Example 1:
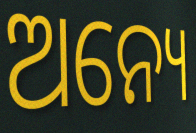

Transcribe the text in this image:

ଅନ୍ୟେ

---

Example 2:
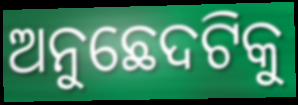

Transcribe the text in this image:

ଅନୁଛେଦଟିକୁ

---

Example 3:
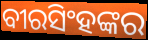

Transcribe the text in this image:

ବୀରସିଂହଙ୍କର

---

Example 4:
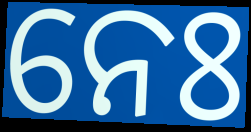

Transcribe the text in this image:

ନେଃ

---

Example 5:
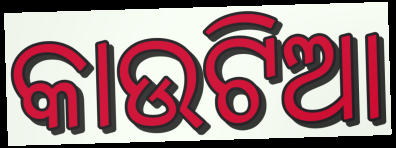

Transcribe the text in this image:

କାଉଟିଆ